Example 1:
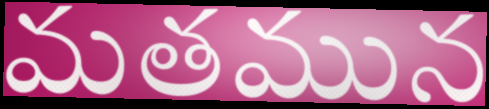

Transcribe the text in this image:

మతమున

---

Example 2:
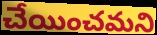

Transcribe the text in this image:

చేయించమని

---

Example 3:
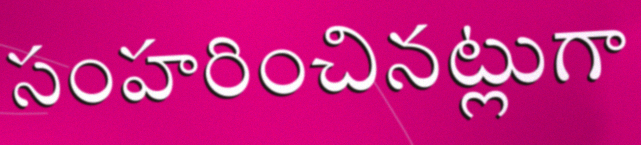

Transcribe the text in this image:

సంహరించినట్లుగా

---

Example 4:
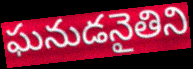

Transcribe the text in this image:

ఘనుడనైతిని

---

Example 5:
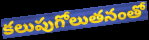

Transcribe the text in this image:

కలుపుగోలుతనంతో